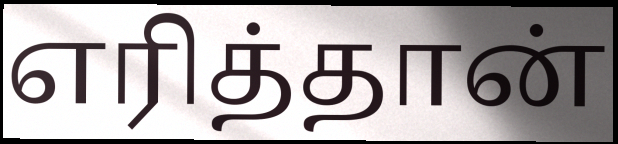
எரித்தான்